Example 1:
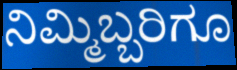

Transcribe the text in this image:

ನಿಮ್ಮಿಬ್ಬರಿಗೂ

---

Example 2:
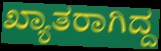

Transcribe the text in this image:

ಖ್ಯಾತರಾಗಿದ್ದ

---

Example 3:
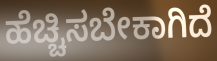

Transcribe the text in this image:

ಹೆಚ್ಚಿಸಬೇಕಾಗಿದೆ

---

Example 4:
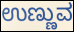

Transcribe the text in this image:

ಉಣ್ಣುವ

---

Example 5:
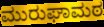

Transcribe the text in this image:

ಮುರುಘಾಮಠ